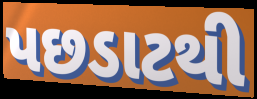
પછડાટથી